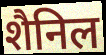
शैनिल